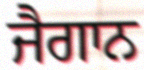
ਜੈਗਾਨ